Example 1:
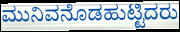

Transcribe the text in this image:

ಮುನಿವನೊಡಹುಟ್ಟಿದರು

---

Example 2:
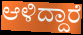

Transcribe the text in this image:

ಆಳಿದ್ದಾರೆ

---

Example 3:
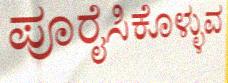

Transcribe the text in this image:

ಪೂರೈಸಿಕೊಳ್ಳುವ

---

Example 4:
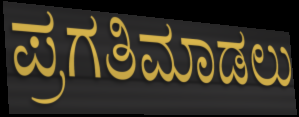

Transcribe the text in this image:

ಪ್ರಗತಿಮಾಡಲು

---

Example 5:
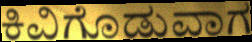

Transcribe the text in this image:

ಕಿವಿಗೊಡುವಾಗ